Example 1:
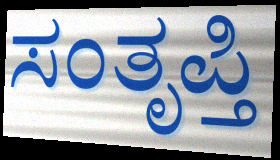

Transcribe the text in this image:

ಸಂತೃಪ್ತಿ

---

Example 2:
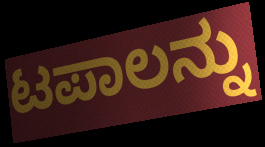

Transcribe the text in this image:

ಟಪಾಲನ್ನು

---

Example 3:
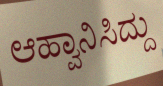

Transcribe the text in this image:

ಆಹ್ವಾನಿಸಿದ್ದು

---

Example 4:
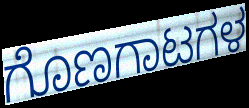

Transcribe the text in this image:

ಗೊಣಗಾಟಗಳ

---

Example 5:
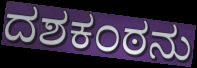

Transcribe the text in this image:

ದಶಕಂಠನು